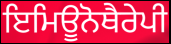
ਇਮਿਊਨੋਥੈਰੇਪੀ